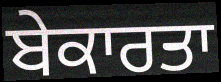
ਬੇਕਾਰਤਾ